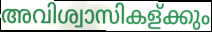
അവിശ്വാസികള്ക്കും